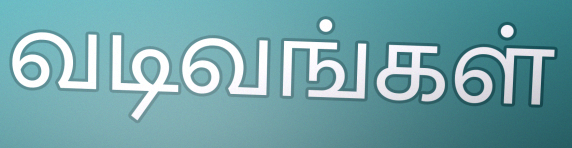
வடிவங்கள்